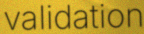
validation